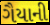
ગૈયાની